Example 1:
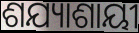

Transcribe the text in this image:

ଶଯ୍ୟାଶାୟୀ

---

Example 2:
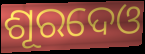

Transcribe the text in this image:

ଶୂରଦେଓ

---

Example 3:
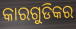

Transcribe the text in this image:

କାରଗୁଡିକର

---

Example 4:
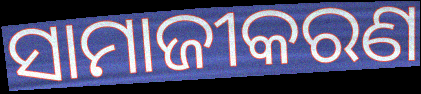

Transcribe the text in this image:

ସାମାଜୀକରଣ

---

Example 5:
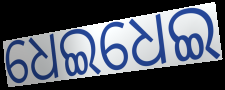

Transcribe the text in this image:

ଧେଇଧେଇ